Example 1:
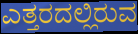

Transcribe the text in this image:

ಎತ್ತರದಲ್ಲಿರುವ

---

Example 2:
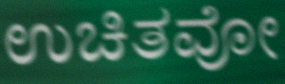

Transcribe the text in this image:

ಉಚಿತವೋ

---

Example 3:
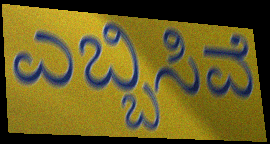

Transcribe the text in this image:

ಎಬ್ಬಿಸಿವೆ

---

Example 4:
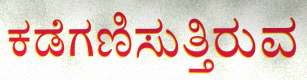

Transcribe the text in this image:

ಕಡೆಗಣಿಸುತ್ತಿರುವ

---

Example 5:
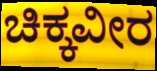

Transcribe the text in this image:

ಚಿಕ್ಕವೀರ